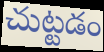
చుట్టడం